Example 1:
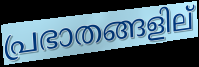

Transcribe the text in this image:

പ്രഭാതങ്ങളില്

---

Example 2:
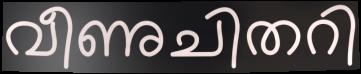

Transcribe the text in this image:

വീണുചിതറി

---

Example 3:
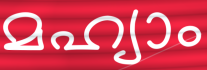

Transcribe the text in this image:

മഹ്യാം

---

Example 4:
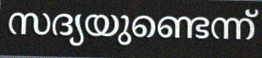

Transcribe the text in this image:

സദ്യയുണ്ടെന്ന്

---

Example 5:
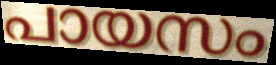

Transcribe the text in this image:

പായസം